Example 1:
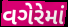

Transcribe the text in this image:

વગેરેમાં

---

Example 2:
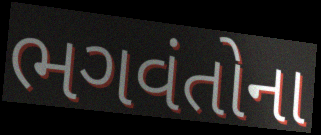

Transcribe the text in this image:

ભગવંતોના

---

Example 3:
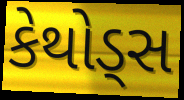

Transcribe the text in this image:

કેથોડ્સ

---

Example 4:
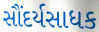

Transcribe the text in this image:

સૌંદર્યસાધક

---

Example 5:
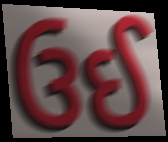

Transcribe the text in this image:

ઉઈ